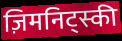
ज़िमनिट्स्की